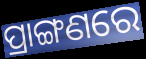
ପ୍ରାଙ୍ଗଣରେ